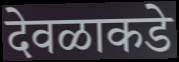
देवळाकडे